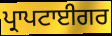
ਪ੍ਰਾਪਟਾਈਗਰ